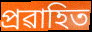
প্ৰৱাহিত